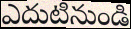
ఎదుటినుండి